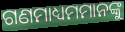
ଗଣମାଧ୍ୟମମାନଙ୍କୁ